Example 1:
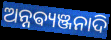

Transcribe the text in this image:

ଅନ୍ନଵ୍ୟଞ୍ଜନାଦି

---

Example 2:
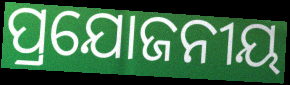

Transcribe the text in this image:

ପ୍ରଯୋଜନୀୟ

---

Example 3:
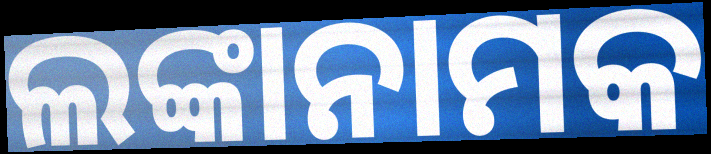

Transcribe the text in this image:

ଲଙ୍କାନାମକ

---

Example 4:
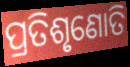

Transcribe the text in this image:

ପ୍ରତିଶୃଣୋତି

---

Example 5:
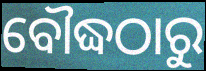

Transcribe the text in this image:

ବୌଦ୍ଧଠାରୁ